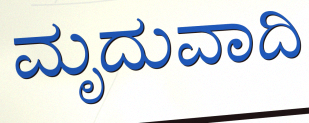
ಮೃದುವಾದಿ